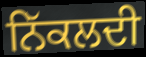
ਨਿੱਕਲਦੀ